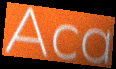
Aca